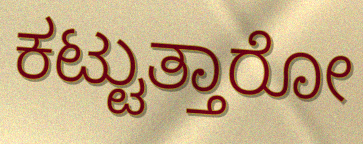
ಕಟ್ಟುತ್ತಾರೋ